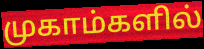
முகாம்களில்